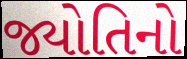
જ્યોતિનો